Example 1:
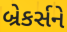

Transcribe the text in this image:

બ્રેકર્સને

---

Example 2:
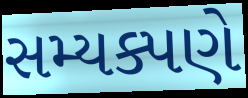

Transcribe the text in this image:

સમ્યક્પણે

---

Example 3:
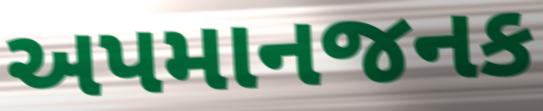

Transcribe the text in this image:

અપમાનજનક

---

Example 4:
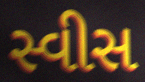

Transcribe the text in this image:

સ્વીસ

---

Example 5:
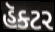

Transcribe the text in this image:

હૅક્ટર